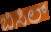
ಬಿಸಿಲ್